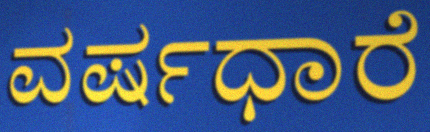
ವರ್ಷಧಾರೆ